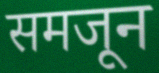
समजून